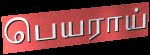
பெயராய்